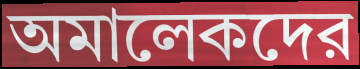
অমালেকদের